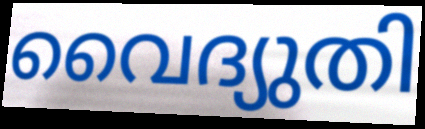
വൈദ്യുതി